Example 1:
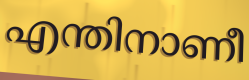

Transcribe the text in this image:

എന്തിനാണീ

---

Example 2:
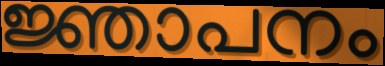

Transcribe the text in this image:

ജ്ഞാപനം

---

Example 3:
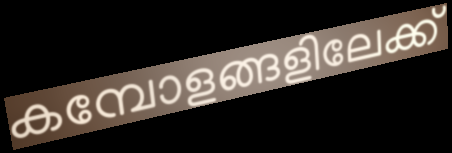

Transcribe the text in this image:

കമ്പോളങ്ങളിലേക്ക്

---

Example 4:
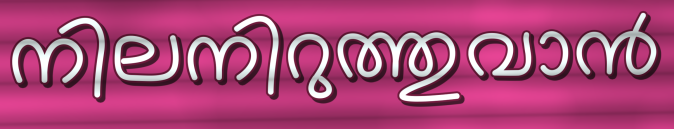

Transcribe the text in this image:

നിലനിറുത്തുവാൻ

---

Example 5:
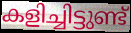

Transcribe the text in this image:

കളിച്ചിട്ടുണ്ട്